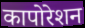
कापोरेशन